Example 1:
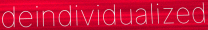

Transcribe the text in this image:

deindividualized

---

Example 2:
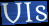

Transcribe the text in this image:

UIs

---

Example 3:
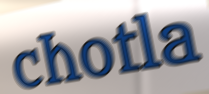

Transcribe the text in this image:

chotla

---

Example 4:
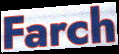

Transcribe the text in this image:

Farch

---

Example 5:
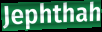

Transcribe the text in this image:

Jephthah